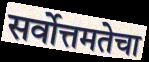
सर्वोत्तमतेचा